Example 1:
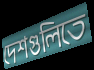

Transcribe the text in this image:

দেশগুলিতে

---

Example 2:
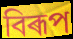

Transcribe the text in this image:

বিৰূপ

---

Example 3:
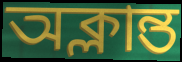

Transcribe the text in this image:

অক্লান্ত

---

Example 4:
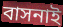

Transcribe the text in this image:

বাসনাই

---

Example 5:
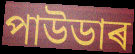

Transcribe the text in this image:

পাউডাৰ